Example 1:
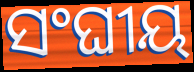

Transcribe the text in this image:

ସଂଘୀୟ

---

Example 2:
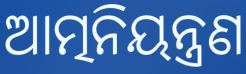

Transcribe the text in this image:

ଆତ୍ମନିୟନ୍ତ୍ରଣ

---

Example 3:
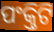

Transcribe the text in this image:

ପଂକ୍ତିଟି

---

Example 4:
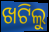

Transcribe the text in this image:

ଖଟିଲୁ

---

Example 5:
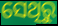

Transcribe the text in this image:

ସେଥିରୁ